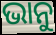
ଭାନୁ